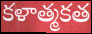
కళాత్మకత